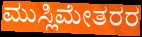
ಮುಸ್ಲಿಮೇತರರ